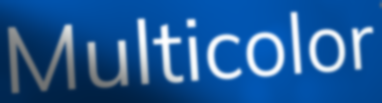
Multicolor